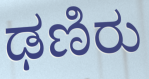
ಢಣಿರು